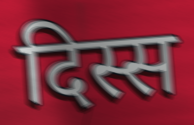
दिस्स